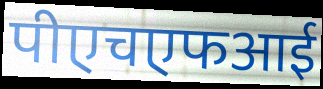
पीएचएफआई